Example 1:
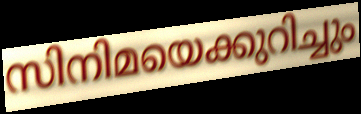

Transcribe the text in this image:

സിനിമയെക്കുറിച്ചും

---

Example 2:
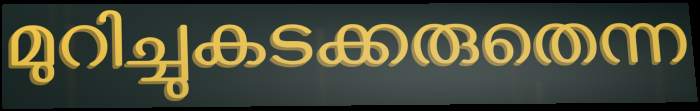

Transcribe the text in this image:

മുറിച്ചുകടക്കരുതെന്ന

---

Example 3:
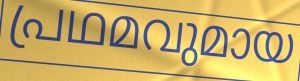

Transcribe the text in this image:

പ്രഥമവുമായ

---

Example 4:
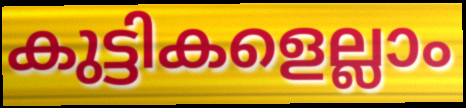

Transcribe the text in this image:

കുട്ടികളെല്ലാം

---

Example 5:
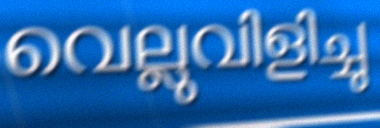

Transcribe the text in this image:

വെല്ലുവിളിച്ചു